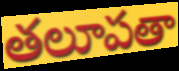
తలూపతా